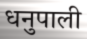
धनुपाली